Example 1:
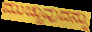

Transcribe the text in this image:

ಮುಚ್ಚುವುದನ್ನು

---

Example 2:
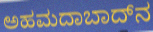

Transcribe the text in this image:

ಅಹಮದಾಬಾದ್‌ನ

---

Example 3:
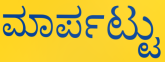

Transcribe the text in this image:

ಮಾರ್ಪಟ್ಟು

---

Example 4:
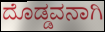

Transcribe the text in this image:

ದೊಡ್ಡವನಾಗಿ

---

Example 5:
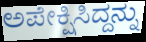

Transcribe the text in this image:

ಅಪೇಕ್ಷಿಸಿದ್ದನ್ನು